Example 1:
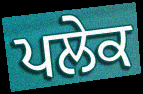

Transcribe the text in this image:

ਪਲੇਕ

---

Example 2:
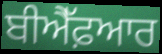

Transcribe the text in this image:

ਬੀਐੱਫ਼ਆਰ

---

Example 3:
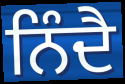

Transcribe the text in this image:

ਨਿੰਦੈ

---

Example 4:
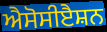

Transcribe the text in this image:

ਐਸੋਸੀੲੈਸ਼ਨ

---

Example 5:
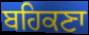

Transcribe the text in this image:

ਬਹਿਕਣਾ